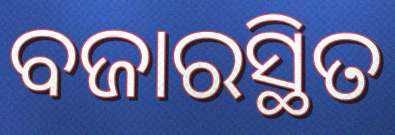
ବଜାରସ୍ଥିତ